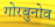
गोरबुनोव